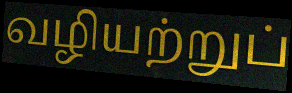
வழியற்றுப்